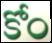
కోం